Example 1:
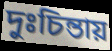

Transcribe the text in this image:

দুঃচিন্তায়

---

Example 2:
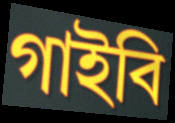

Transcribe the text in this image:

গাইবি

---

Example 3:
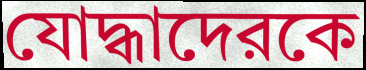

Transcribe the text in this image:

যোদ্ধাদেরকে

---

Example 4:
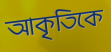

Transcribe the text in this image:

আকৃতিকে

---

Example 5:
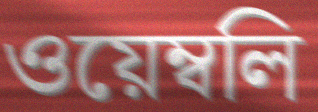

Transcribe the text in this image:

ওয়েম্বলি